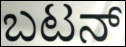
ಬಟನ್